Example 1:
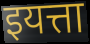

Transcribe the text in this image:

इयत्ता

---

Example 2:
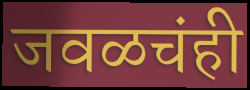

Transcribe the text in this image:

जवळचंही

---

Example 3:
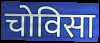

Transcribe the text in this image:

चोविसा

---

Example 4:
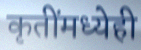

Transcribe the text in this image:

कृतींमध्येही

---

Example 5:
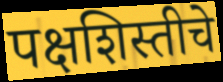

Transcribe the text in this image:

पक्षशिस्तीचे